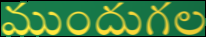
ముందుగల